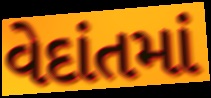
વેદાંતમાં